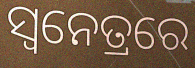
ସ୍ୱନେତ୍ରରେ